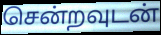
சென்றவுடன்